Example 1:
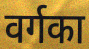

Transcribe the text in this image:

वर्गका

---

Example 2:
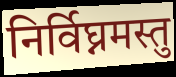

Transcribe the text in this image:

निर्विघ्नमस्तु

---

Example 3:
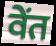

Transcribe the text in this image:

वेंत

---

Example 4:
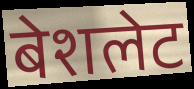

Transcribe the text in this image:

बेशलेट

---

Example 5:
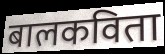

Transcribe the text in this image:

बालकविता